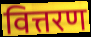
वित्तरण